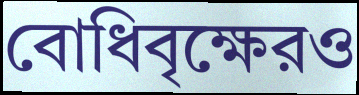
বোধিবৃক্ষেরও